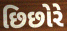
છિછોરે